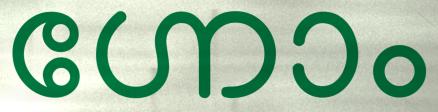
ഗ്നോം